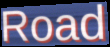
Road